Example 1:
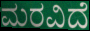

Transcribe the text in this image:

ಮರವಿದೆ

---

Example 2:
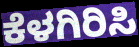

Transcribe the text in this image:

ಕೆಳಗಿರಿಸಿ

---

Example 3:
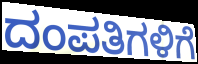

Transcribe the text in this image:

ದಂಪತಿಗಳಿಗೆ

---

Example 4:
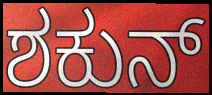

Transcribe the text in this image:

ಶಕುನ್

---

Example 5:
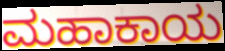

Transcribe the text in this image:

ಮಹಾಕಾಯ